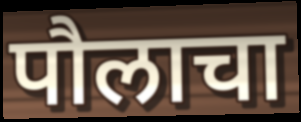
पौलाचा